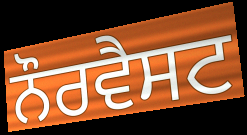
ਨੌਰਵੈਸਟ